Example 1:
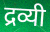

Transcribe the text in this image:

द्रव्यी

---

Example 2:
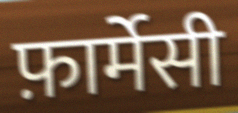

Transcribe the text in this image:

फ़ार्मेसी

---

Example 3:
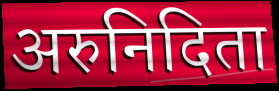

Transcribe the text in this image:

अरुनिदिता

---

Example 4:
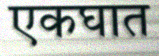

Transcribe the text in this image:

एकघात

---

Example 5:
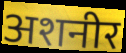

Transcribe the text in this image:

अशनीर